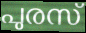
പുരസ്